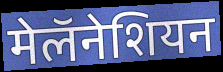
मेलॅनेशियन